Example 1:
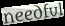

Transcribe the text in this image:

needful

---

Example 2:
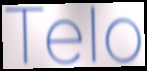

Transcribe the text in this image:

Telo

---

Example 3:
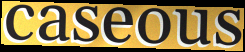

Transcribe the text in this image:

caseous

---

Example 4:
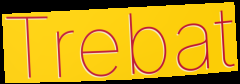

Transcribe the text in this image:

Trebat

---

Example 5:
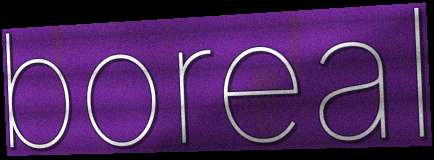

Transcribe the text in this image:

boreal